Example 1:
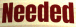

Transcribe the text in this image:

Needed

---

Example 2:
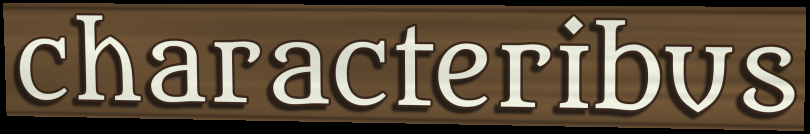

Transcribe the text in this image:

characteribus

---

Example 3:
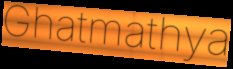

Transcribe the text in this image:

Ghatmathya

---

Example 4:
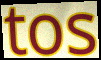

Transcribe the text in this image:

tos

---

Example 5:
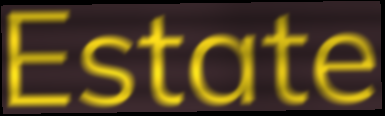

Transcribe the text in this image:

Estate